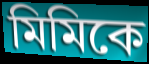
মিমিকে